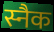
स्नैक